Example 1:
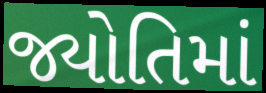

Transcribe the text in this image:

જ્યોતિમાં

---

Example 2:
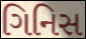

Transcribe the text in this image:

ગિનિસ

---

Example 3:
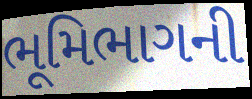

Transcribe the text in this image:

ભૂમિભાગની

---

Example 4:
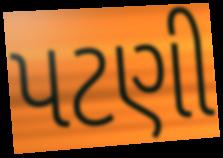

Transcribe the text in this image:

પટણી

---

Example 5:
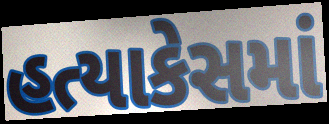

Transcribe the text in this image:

હત્યાકેસમાં